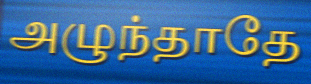
அழுந்தாதே